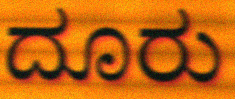
ದೂರು